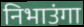
निभाउंगा